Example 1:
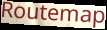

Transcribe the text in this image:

Routemap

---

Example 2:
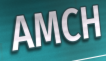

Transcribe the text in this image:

AMCH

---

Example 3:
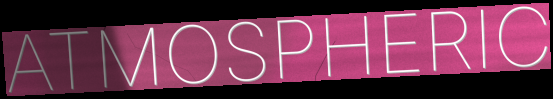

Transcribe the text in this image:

ATMOSPHERIC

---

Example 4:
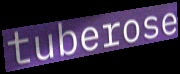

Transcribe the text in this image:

tuberose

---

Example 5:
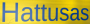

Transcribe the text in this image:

Hattusas